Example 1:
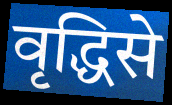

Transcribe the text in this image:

वृद्धिसे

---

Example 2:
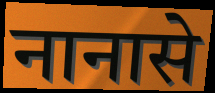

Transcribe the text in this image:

नानासे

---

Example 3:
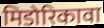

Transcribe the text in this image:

मिडोरिकावा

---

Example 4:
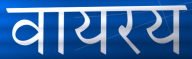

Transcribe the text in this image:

वायरय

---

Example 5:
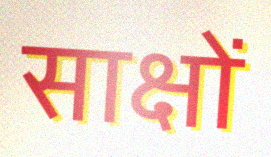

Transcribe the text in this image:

साक्षों